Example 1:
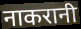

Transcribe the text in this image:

नाकरानी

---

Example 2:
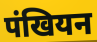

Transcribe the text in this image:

पंखियन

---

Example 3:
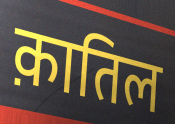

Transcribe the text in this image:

क़ातिल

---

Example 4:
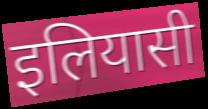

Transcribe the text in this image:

इलियासी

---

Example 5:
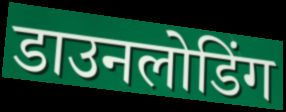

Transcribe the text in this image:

डाउनलोडिंग